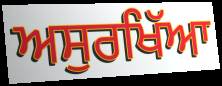
ਅਸੁਰਖਿੱਆ